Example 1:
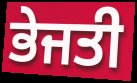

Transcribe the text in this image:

ਭੇਜਤੀ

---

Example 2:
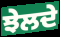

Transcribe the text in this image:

ਝੇਲਦੇ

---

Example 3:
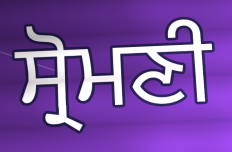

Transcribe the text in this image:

ਸ੍ਰੋਮਣੀ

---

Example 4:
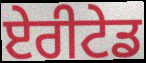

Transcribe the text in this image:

ਏਰੀਟੇਡ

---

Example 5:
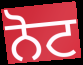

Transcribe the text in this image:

ਨੋਟ